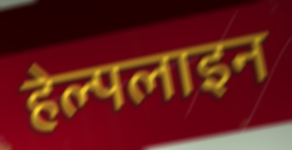
हेल्पलाइन